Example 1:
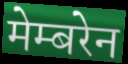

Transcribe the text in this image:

मेम्बरेन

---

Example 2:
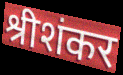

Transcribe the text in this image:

श्रीशंकर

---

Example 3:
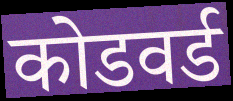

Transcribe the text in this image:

कोडवर्ड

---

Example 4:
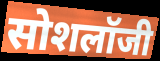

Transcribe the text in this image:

सोशलॉजी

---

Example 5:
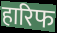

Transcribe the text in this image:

हारिफ